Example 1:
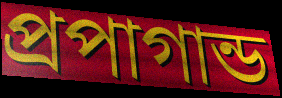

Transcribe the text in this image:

প্রপাগান্ড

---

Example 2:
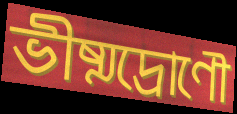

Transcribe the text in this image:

ভীষ্মদ্রোণৌ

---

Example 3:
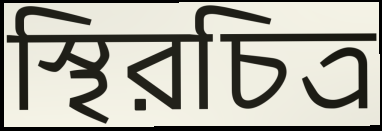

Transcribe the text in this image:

স্থিরচিত্র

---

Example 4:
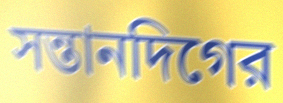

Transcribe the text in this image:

সন্তানদিগের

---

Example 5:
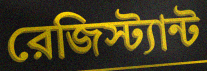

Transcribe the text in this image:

রেজিস্ট্যান্ট